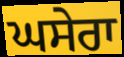
ਘਸੇਰਾ